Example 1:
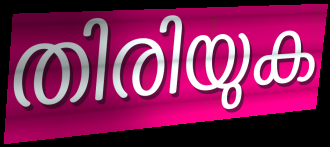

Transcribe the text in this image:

തിരിയുക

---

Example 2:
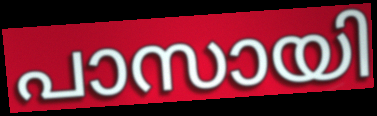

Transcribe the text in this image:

പാസായി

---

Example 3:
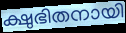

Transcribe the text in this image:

ക്ഷുഭിതനായി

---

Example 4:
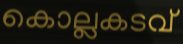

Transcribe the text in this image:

കൊല്ലകടവ്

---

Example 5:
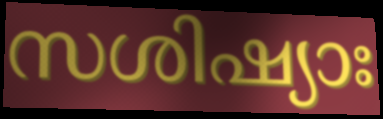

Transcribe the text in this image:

സശിഷ്യാഃ